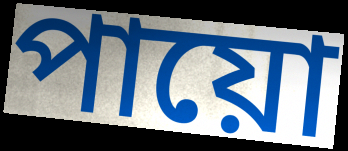
পায়ো